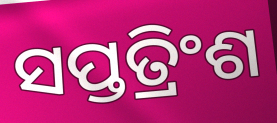
ସପ୍ତତ୍ରିଂଶ